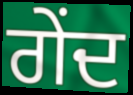
ਗੇਂਦ